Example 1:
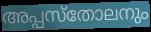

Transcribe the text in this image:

അപ്പസ്തോലനും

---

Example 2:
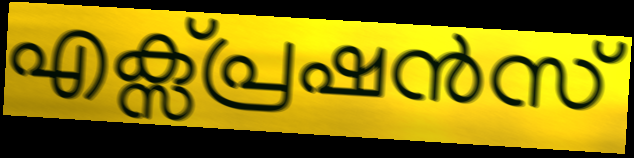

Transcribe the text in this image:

എക്സ്പ്രഷൻസ്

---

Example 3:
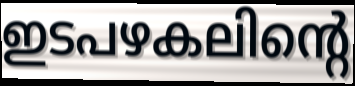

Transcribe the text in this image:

ഇടപഴകലിന്റെ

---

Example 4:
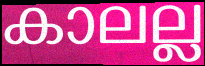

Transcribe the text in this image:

കാലല്ല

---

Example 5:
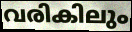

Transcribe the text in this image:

വരികിലും